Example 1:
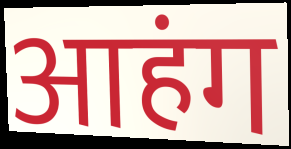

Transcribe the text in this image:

आहंग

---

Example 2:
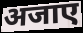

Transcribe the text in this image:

अजाए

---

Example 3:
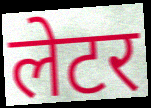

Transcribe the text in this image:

लेटर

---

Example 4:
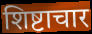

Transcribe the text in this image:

शिष्टाचार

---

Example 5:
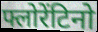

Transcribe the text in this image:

फ्लोरेंटिनो